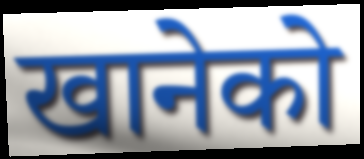
खानेको